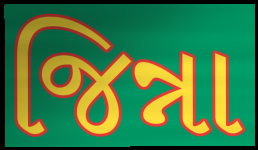
જિન્ના